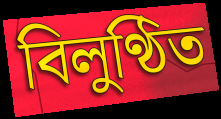
বিলুণ্ঠিত